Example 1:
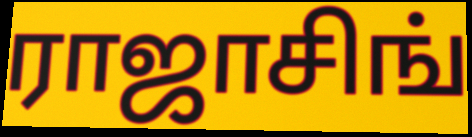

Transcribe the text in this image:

ராஜாசிங்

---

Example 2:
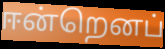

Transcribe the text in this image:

ஈன்றெனப்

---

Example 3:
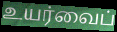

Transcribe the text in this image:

உயர்வைப்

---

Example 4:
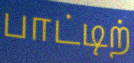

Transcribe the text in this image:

பாட்டிற்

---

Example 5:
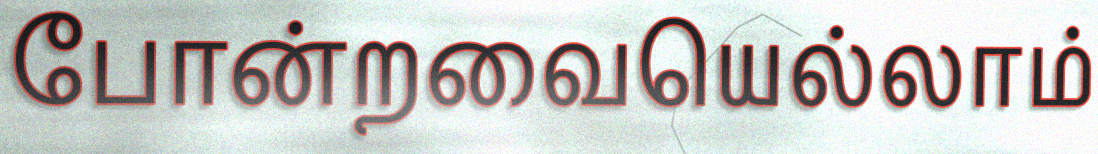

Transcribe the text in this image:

போன்றவையெல்லாம்